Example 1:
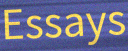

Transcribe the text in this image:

Essays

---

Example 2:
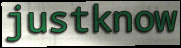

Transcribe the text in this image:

justknow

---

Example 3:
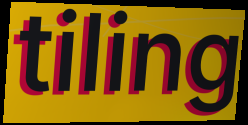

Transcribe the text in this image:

tiling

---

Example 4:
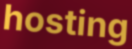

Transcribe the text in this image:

hosting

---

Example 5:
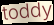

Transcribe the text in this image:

toddy